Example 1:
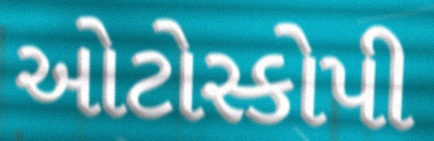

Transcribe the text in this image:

ઓટોસ્કોપી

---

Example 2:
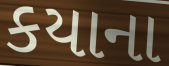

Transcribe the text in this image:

કયાના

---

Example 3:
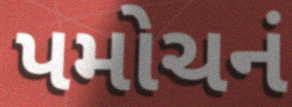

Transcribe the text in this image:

પમોચનં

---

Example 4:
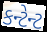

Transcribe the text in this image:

કન્ટેન્ટ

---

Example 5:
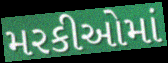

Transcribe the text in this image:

મરકીઓમાં